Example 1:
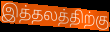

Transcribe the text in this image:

இத்தலத்திற்கு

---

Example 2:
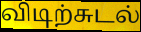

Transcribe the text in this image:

விடிற்சுடல்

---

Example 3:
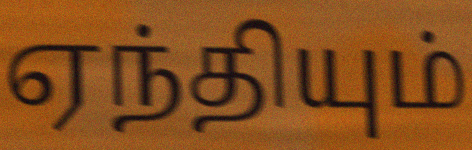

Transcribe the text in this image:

ஏந்தியும்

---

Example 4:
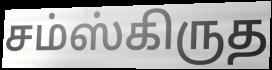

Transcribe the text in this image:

சம்ஸ்கிருத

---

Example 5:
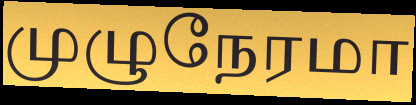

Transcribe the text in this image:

முழுநேரமா